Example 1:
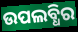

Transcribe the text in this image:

ଉପଲବ୍ଧିର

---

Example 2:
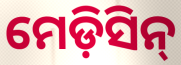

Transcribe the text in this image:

ମେଡ଼ିସିନ୍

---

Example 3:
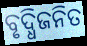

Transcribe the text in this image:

ବୃଦ୍ଧିଜନିତ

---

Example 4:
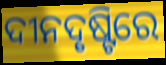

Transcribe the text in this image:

ଦୀନଦୃଷ୍ଟିରେ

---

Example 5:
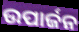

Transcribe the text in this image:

ଉପାର୍ଜନ